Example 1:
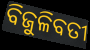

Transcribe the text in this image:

ବିଜୁଳିବତୀ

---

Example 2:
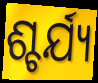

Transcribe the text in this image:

ଶ୍ଚର୍ଯ୍ୟ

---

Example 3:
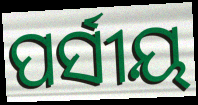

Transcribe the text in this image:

ପର୍ସୀୟ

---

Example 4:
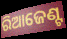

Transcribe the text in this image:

ରିଆଜେଣ୍ଟ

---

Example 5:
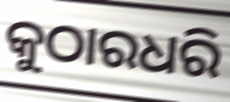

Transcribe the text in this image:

କୁଠାରଧରି